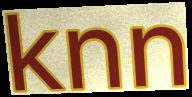
knn